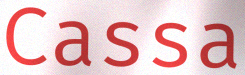
Cassa